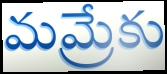
మమ్రేకు